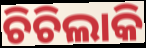
ଚିଚିଲାକି